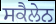
ਸਕੈਲੇਨ